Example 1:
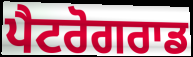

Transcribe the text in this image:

ਪੈਟਰੋਗਰਾਡ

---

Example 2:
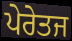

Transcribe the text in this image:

ਪੇਰੇਤਜ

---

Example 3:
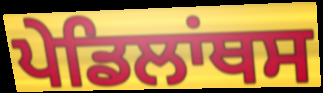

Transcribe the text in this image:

ਪੇਡਿਲਾਂਥਸ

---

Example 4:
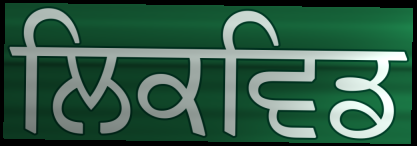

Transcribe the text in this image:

ਲਿਕਵਿਡ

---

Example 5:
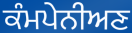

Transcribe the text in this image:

ਕੰਮਪੇਨੀਅਣ